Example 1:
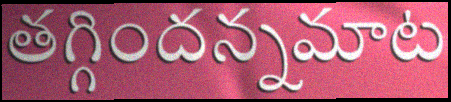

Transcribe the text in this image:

తగ్గిందన్నమాట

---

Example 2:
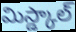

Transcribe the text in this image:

మిస్డ్కాల్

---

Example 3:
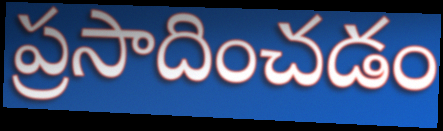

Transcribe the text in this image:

ప్రసాదించడం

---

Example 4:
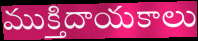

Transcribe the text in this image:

ముక్తిదాయకాలు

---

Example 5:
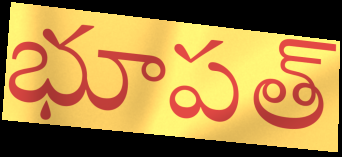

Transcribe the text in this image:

భూపత్